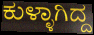
ಕುಳ್ಳಾಗಿದ್ದ